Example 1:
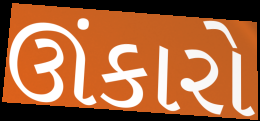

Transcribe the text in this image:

ઊંકારો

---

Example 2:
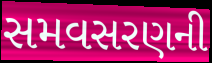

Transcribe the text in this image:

સમવસરણની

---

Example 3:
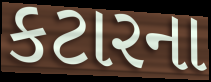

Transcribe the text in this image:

કટારના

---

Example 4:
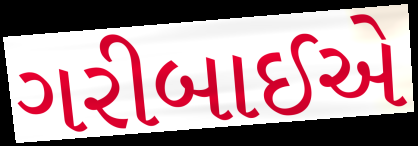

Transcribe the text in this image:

ગરીબાઈએ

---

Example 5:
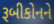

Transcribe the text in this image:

રૂબીકોનને